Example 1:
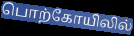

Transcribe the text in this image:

பொற்கோயிலில்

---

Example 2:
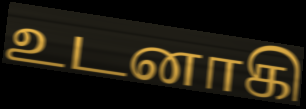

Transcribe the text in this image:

உடனாகி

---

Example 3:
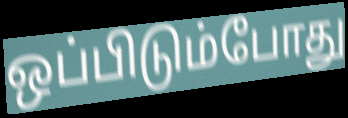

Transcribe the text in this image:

ஒப்பிடும்போது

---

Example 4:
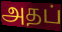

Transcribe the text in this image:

அதப்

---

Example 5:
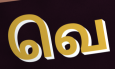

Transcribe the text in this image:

வெ